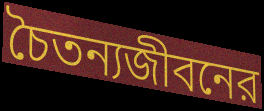
চৈতন্যজীবনের